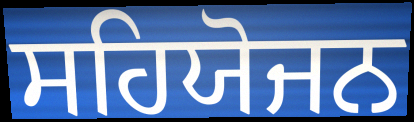
ਸਹਿਯੋਜਨ